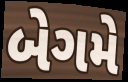
બેગમે